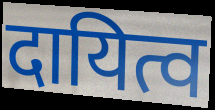
दायित्व